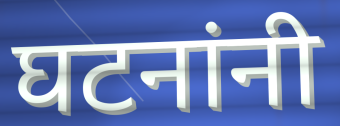
घटनांनी